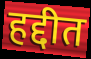
हद्दीत